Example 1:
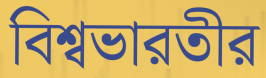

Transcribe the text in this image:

বিশ্বভারতীর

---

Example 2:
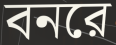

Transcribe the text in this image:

বনরে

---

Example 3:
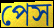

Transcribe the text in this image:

পেস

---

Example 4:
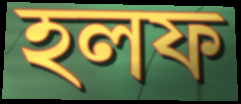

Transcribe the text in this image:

হলফ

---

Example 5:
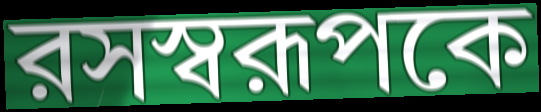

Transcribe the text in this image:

রসস্বরূপকে